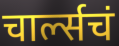
चार्ल्सचं